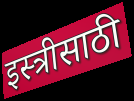
इस्त्रीसाठी